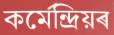
কৰ্মেন্দ্ৰিয়ৰ